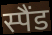
स्पैंड